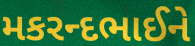
મકરન્દભાઈને